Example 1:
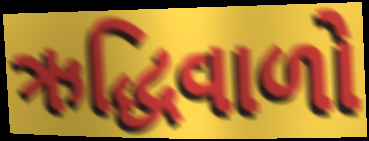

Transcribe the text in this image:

ઋદ્ધિવાળો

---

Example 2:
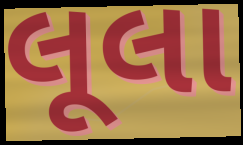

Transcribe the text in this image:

લૂલા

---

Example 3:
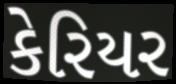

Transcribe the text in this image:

કેરિયર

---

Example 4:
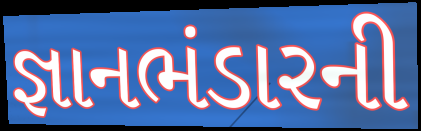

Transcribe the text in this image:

જ્ઞાનભંડારની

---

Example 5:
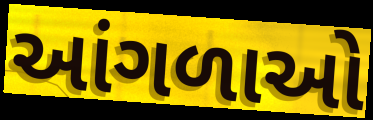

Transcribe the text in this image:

આંગળાઓ